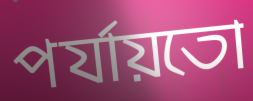
পৰ্যায়তো